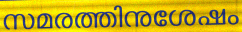
സമരത്തിനുശേഷം